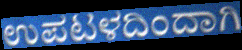
ಉಪಟಳದಿಂದಾಗಿ